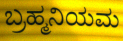
ಬ್ರಹ್ಮನಿಯಮ